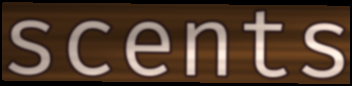
scents